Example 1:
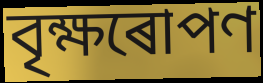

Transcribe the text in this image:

বৃক্ষৰোপণ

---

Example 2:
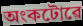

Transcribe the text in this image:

অংকটোৱে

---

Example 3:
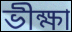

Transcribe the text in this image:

ভীক্ষা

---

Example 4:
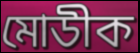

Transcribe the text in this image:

মোডীক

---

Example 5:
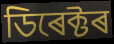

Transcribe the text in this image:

ডিৰেক্টৰ